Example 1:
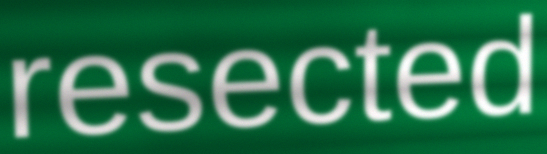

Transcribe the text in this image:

resected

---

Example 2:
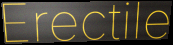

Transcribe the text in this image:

Erectile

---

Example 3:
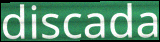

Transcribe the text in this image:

discada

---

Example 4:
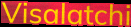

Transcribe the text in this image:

Visalatchi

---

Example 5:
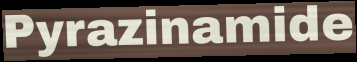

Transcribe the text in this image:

Pyrazinamide